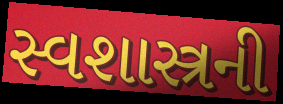
સ્વશાસ્ત્રની